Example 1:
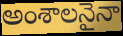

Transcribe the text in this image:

అంశాలనైనా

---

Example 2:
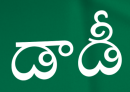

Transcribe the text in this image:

డాడీ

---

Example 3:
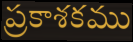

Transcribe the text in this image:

ప్రకాశకము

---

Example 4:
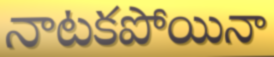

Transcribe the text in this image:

నాటకపోయినా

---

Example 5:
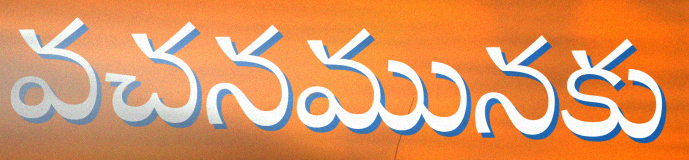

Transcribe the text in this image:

వచనమునకు